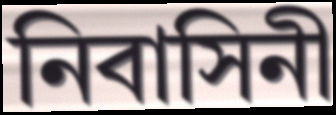
নিবাসিনী